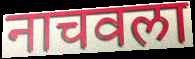
नाचवला